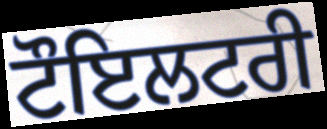
ਟੌਇਲਟਰੀ